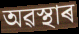
অৱস্থাৰ